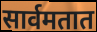
सार्वमतात